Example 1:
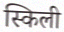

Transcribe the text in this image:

स्किली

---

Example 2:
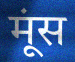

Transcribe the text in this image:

मूंस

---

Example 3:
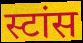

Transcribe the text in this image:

स्टांस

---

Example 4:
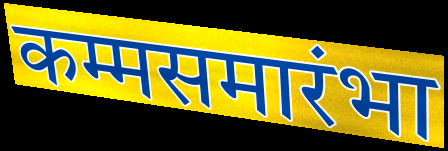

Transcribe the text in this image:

कम्मसमारंभा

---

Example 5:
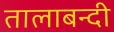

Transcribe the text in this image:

तालाबन्दी